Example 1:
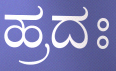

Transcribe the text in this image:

ಹ್ರದಃ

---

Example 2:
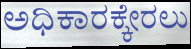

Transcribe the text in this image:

ಅಧಿಕಾರಕ್ಕೇರಲು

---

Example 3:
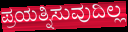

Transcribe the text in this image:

ಪ್ರಯತ್ನಿಸುವುದಿಲ್ಲ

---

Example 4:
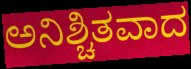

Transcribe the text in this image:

ಅನಿಶ್ಚಿತವಾದ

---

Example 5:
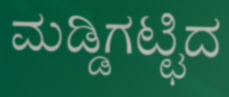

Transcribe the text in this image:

ಮಡ್ಡಿಗಟ್ಟಿದ